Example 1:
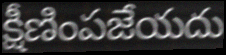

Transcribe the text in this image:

క్షీణింపజేయదు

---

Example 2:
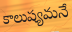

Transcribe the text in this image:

కాలుష్యమనే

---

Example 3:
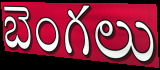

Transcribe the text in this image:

బెంగలు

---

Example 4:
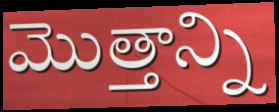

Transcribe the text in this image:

మొత్తాన్ని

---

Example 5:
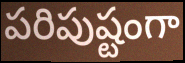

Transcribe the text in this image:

పరిపుష్టంగా